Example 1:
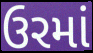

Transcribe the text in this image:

ઉરમાં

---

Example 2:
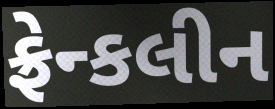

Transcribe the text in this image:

ફ્રેન્કલીન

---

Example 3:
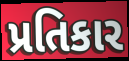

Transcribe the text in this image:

પ્રતિકાર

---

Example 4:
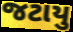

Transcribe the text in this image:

જટાયુ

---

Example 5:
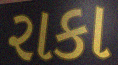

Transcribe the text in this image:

રાકા